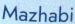
Mazhabi